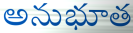
అనుభూత